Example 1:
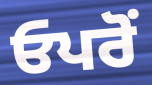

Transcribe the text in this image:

ਓਪਰੋਂ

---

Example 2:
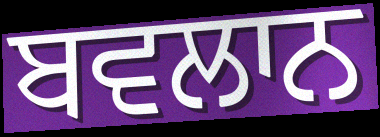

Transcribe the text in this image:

ਬਵਲਾਨ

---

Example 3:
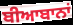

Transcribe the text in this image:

ਬੀਆਬਾਨਾਂ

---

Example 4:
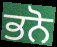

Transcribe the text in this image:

ਭਨੋ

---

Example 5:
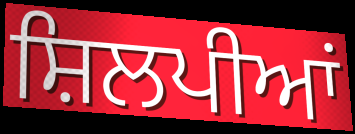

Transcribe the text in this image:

ਸ਼ਿਲਪੀਆਂ